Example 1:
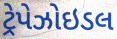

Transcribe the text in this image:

ટ્રેપેઝોઇડલ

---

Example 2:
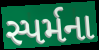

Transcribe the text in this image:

સ્પર્મના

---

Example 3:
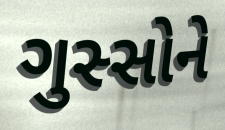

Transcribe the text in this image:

ગુસ્સોને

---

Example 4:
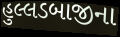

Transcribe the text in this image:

હુલ્લડબાજીના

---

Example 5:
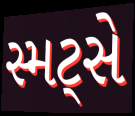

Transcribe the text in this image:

સ્મટ્સે